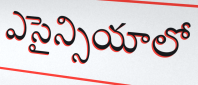
ఎసైన్సియాలో